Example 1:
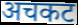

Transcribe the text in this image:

अचकट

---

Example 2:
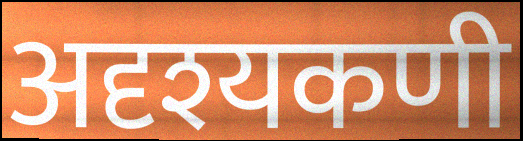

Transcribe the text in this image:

अदृश्यकणी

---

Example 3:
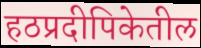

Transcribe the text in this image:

हठप्रदीपिकेतील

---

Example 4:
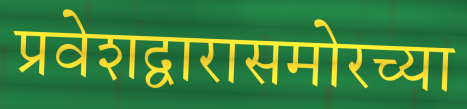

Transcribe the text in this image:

प्रवेशद्वारासमोरच्या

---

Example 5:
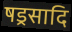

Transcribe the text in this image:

षड्रसादि